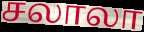
சலாலா